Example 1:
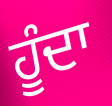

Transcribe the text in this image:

ਹੂੰਦਾ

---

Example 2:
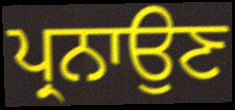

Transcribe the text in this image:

ਪ੍ਰਨਾਉਣ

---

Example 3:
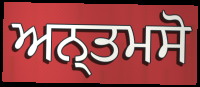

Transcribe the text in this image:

ਅਨ੍ਤਮਸੋ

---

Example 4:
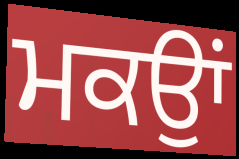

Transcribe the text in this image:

ਮਕਉਾਂ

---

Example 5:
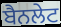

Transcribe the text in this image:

ਬੈਨਲੇਟ